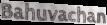
Bahuvachan